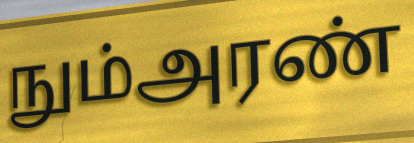
நும்அரண்